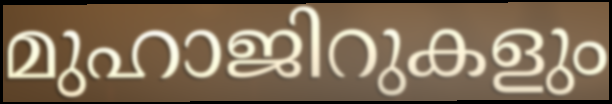
മുഹാജിറുകളും